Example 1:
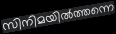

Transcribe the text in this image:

സിനിമയിൽത്തന്നെ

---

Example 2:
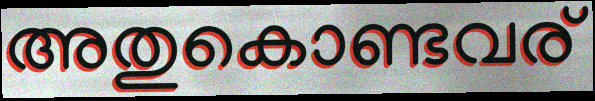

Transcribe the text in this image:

അതുകൊണ്ടവര്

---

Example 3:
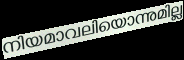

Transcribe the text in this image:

നിയമാവലിയൊന്നുമില്ല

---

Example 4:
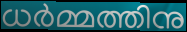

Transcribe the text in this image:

ധർമ്മത്തിനു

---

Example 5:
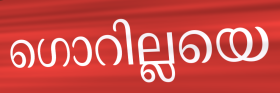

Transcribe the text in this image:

ഗൊറില്ലയെ